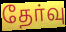
தேர்வு